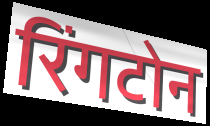
रिंगटोन